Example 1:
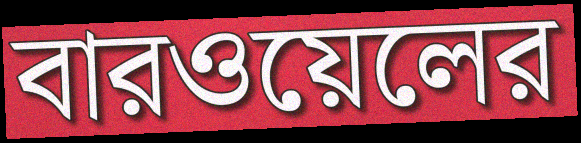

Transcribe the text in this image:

বারওয়েলের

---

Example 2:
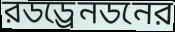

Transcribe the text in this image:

রডড্রেনডনের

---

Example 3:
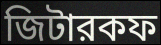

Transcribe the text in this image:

জিটারকফ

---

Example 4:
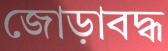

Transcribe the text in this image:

জোড়াবদ্ধ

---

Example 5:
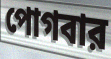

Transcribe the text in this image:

পোগবার